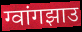
ग्वांगझाउ